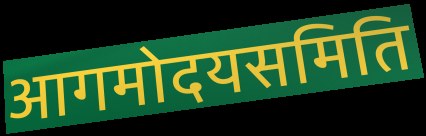
आगमोदयसमिति